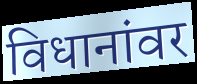
विधानांवर